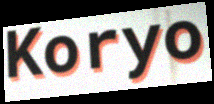
Koryo